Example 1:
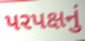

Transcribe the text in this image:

પરપક્ષનું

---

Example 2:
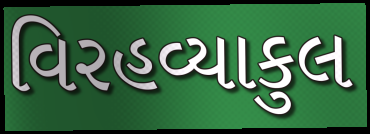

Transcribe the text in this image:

વિરહવ્યાકુલ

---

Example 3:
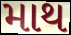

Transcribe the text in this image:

માથ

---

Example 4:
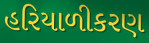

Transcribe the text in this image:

હરિયાળીકરણ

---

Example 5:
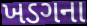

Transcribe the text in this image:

ખડગના